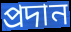
প্রদান